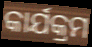
କାର୍ଯକ୍ରମ